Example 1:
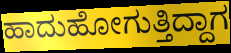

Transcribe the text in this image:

ಹಾದುಹೋಗುತ್ತಿದ್ದಾಗ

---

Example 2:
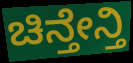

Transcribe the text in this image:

ಚಿನ್ತೇನ್ತಿ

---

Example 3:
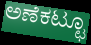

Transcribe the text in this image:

ಅಣೆಕಟ್ಟೂ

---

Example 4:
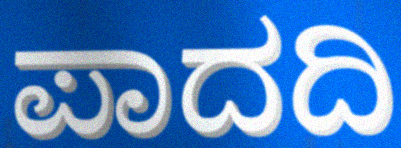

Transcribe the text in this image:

ಪಾದದಿ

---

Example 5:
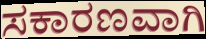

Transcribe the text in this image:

ಸಕಾರಣವಾಗಿ